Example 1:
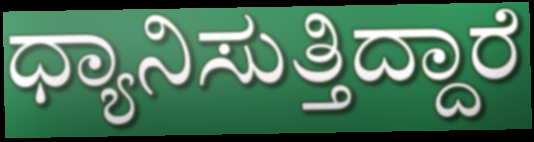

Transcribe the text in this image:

ಧ್ಯಾನಿಸುತ್ತಿದ್ದಾರೆ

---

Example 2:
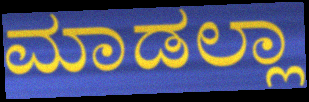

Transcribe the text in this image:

ಮಾಡಲ್ಲಾ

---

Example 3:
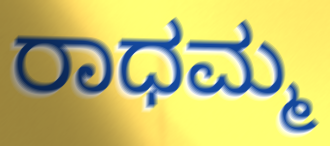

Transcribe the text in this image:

ರಾಧಮ್ಮ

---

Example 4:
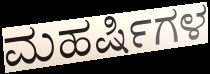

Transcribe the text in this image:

ಮಹರ್ಷಿಗಳ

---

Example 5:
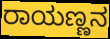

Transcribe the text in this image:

ರಾಯಣ್ಣನ